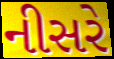
નીસરે